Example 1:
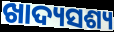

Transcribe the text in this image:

ଖାଦ୍ୟସଶ୍ୟ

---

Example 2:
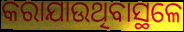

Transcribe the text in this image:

କରାଯାଉଥିବାସ୍ଥଳେ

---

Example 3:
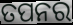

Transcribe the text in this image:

ତପନର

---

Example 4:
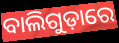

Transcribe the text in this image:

ବାଲିଗୁଡ଼ାରେ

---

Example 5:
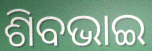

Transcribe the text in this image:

ଶିବଭାଇ